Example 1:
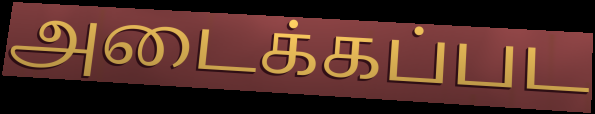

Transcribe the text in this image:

அடைக்கப்பட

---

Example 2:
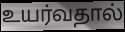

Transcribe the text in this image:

உயர்வதால்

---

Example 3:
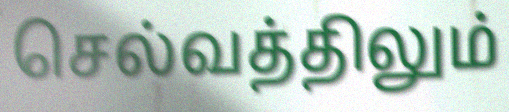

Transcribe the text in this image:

செல்வத்திலும்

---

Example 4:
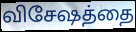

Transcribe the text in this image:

விசேஷத்தை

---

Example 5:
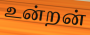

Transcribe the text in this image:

உன்றன்